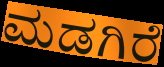
ಮಡಗಿರೆ